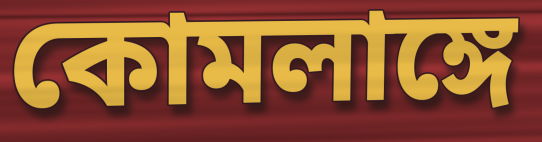
কোমলাঙ্গে